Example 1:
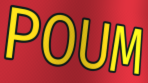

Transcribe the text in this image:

POUM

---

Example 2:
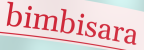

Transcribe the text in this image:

bimbisara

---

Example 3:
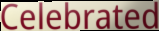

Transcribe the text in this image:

Celebrated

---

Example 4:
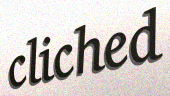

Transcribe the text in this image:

cliched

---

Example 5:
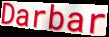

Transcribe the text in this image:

Darbar